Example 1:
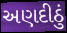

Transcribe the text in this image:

અણદીઠું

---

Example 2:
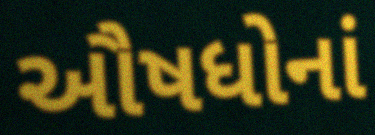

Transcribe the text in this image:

ઔષધોનાં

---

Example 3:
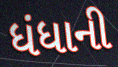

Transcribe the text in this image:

ધંધાની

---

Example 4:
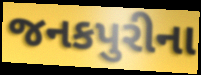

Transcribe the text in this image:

જનકપુરીના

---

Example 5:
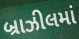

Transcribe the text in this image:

બ્રાઝીલમાં